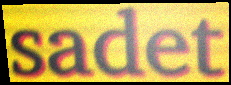
sadet